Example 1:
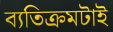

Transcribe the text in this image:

ব্যতিক্রমটাই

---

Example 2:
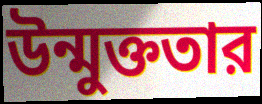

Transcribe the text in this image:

উন্মুক্ততার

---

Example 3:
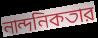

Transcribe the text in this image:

নান্দনিকতার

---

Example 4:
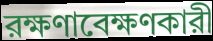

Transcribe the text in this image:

রক্ষণাবেক্ষণকারী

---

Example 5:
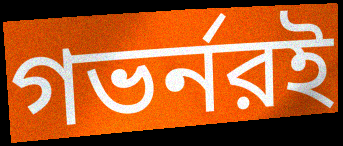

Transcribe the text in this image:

গভর্নরই